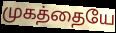
முகத்தையே